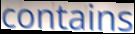
contains